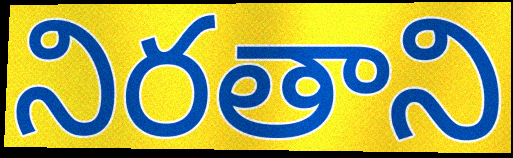
నిరతాని